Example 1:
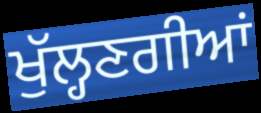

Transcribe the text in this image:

ਖੁੱਲ੍ਹਣਗੀਆਂ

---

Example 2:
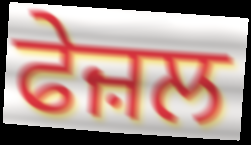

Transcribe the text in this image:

ਫੇਜ਼ਲ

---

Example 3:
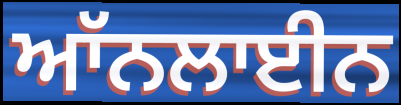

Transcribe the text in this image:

ਆੱਨਲਾਈਨ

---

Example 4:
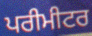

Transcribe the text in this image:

ਪਰੀਮੀਟਰ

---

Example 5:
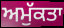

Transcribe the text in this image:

ਅਮੁੱਕਤਾ